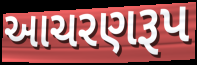
આચરણરૂપ